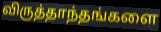
விருத்தாந்தங்களை